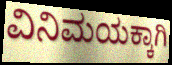
ವಿನಿಮಯಕ್ಕಾಗಿ